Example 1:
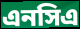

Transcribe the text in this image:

এনসিএ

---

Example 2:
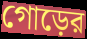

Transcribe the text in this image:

গোড়ের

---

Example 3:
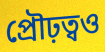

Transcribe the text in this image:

প্রৌঢ়ত্বও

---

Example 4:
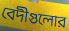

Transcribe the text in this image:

বেদীগুলোর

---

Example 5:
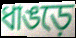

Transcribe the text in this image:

ধাঙড়ে